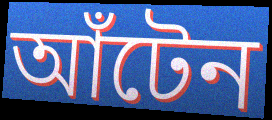
আঁটেন